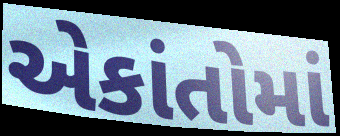
એકાંતોમાં